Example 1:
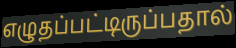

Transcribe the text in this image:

எழுதப்பட்டிருப்பதால்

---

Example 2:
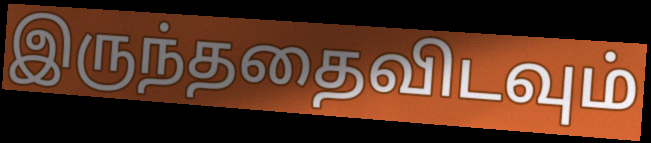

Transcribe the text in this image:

இருந்ததைவிடவும்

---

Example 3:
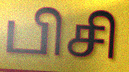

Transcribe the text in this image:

பிசி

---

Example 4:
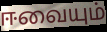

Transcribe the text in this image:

ஈவையும்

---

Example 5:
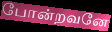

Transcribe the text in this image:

போன்றவனே